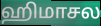
ஹிமாசல